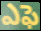
ఎఫె